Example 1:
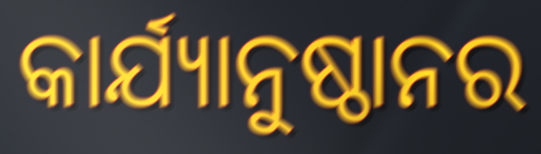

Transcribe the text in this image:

କାର୍ଯ୍ୟାନୁଷ୍ଠାନର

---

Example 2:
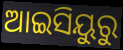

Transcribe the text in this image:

ଆଇସିୟୁରୁ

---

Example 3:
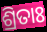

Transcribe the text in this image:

ଶ୍ରିତାଃ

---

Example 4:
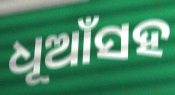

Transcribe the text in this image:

ଧୂଆଁସହ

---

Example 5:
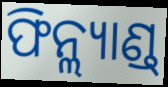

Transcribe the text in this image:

ଫିନ୍ଲ୍ୟାଣ୍ଡ୍